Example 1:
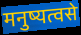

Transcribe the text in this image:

मनुष्यत्वसे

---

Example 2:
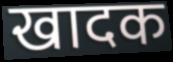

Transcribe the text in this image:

खादक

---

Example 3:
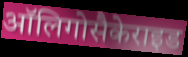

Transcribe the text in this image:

ऑलिगोसैकेराइड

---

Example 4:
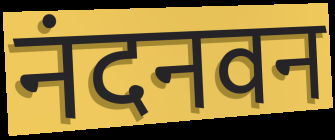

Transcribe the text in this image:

नंदनवन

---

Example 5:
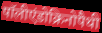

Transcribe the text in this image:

पॉलीएंडोक्रिनोपैथी